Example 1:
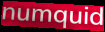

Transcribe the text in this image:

numquid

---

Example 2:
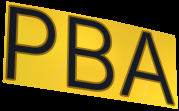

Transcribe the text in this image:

PBA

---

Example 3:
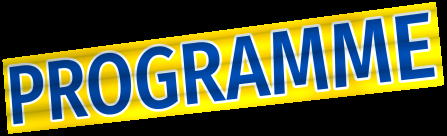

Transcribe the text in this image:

PROGRAMME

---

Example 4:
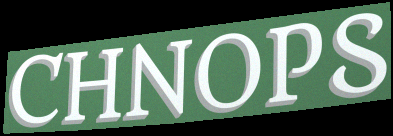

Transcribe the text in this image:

CHNOPS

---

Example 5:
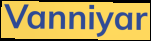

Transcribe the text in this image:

Vanniyar